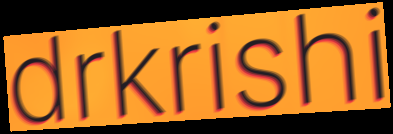
drkrishi